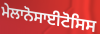
ਮੇਲਾਨੋਸਾਈਟੋਸਿਸ